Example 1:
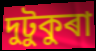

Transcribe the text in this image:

দুটুকুৰা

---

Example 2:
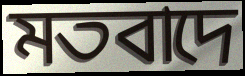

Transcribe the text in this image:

মতবাদে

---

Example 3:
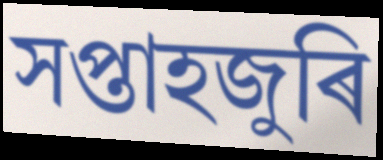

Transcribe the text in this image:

সপ্তাহজুৰি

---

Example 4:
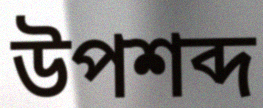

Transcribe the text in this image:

উপশব্দ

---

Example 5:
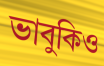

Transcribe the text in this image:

ভাবুকিও